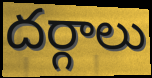
దర్గాలు